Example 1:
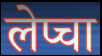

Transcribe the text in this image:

लेप्चा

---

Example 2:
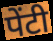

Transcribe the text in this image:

पेंटी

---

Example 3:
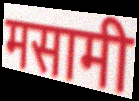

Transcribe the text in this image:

मसामी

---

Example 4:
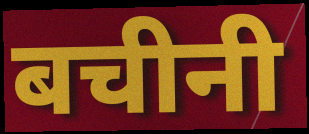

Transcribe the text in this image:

बचीनी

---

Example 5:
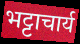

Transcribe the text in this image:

भट्टाचार्य